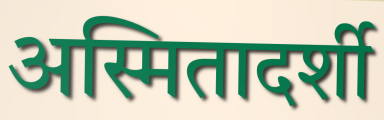
अस्मितादर्शी